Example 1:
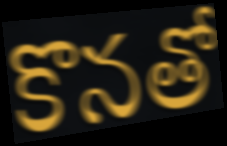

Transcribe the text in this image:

కొనతో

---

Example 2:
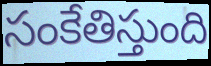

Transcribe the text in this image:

సంకేతిస్తుంది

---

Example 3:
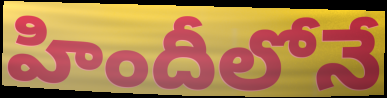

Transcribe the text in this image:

హిందీలోనే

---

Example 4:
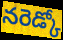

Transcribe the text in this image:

నరెడ్కో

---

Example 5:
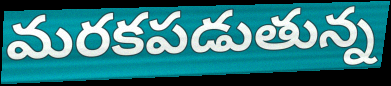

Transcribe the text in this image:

మరకపడుతున్న